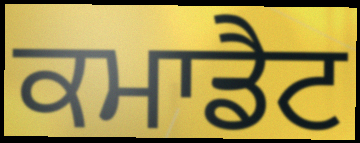
ਕਮਾਡੈਟ